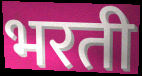
भरती